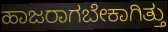
ಹಾಜರಾಗಬೇಕಾಗಿತ್ತು